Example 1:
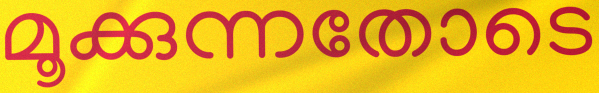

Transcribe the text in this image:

മൂക്കുന്നതോടെ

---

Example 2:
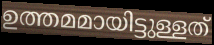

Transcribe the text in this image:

ഉത്തമമായിട്ടുള്ളത്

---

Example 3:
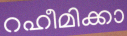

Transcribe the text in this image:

റഹീമിക്കാ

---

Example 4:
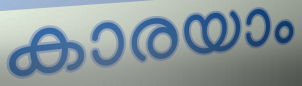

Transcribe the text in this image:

കാരയാം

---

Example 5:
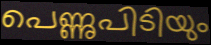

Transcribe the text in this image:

പെണ്ണുപിടിയും